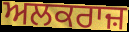
ਅਲਕਰਾਜ਼